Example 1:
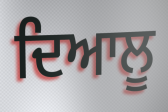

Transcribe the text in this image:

ਦਿਆਲੂ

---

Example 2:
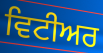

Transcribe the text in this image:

ਵਿਟੀਅਰ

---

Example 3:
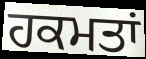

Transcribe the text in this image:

ਹਕਮਤਾਂ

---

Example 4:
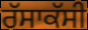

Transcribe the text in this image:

ਰੱਸਾਕੱਸੀ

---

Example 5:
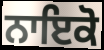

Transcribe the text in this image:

ਨਾਇਕੋ